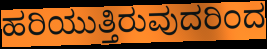
ಹರಿಯುತ್ತಿರುವುದರಿಂದ